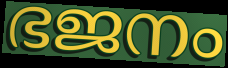
ഭജനം